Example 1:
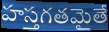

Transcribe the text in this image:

హస్తగతమైతే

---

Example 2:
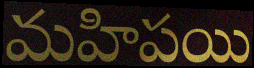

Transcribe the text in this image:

మహిపయి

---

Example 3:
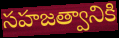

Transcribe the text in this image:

సహజత్వానికి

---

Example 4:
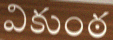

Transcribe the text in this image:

వికుంఠ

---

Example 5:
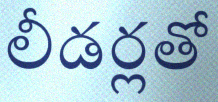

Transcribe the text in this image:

లీడర్లతో